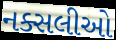
નક્સલીઓ